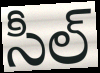
సీల్